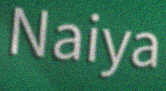
Naiya